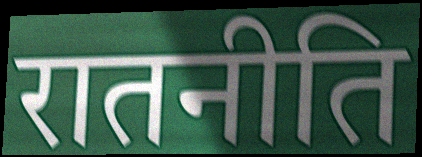
रातनीति